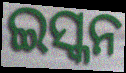
ଇସ୍କନ